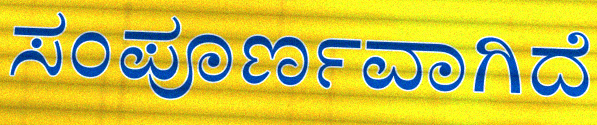
ಸಂಪೂರ್ಣವಾಗಿದೆ